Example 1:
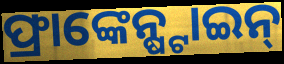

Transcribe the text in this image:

ଫ୍ରାଙ୍କେନ୍ଷ୍ଟାଇନ୍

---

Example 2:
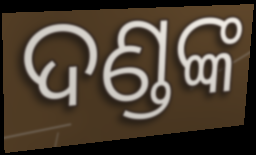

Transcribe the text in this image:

ଦଣ୍ଡଙ୍କ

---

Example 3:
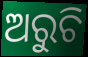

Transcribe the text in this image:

ଅରୁଚି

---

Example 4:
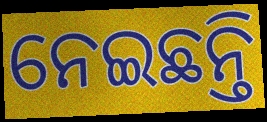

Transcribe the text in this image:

ନେଇଛନ୍ତି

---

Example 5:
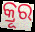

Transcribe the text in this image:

କ୍ରୂର